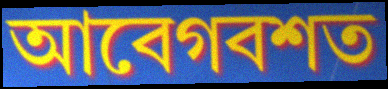
আবেগবশত